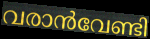
വരാൻവേണ്ടി